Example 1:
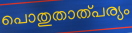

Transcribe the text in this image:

പൊതുതാത്പര്യം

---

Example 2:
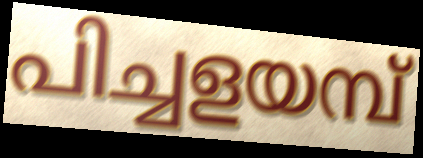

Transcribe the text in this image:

പിച്ചളയമ്പ്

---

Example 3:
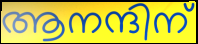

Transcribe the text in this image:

ആനന്ദിന്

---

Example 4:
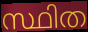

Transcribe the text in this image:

സ്ഥിത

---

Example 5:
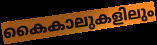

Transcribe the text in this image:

കൈകാലുകളിലും